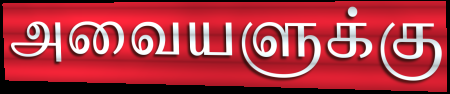
அவையளுக்கு